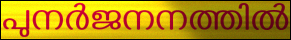
പുനർജനനത്തിൽ